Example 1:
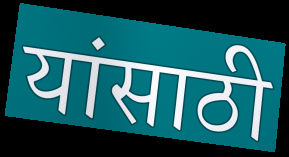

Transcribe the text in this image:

यांसाठी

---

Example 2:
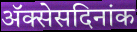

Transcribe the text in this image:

ॲक्सेसदिनांक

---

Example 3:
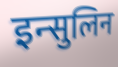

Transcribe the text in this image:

इन्सुलिन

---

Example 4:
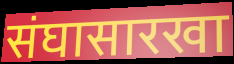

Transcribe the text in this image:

संघासारखा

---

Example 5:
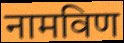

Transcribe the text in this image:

नामविण